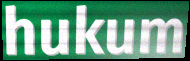
hukum